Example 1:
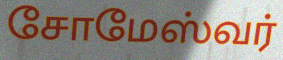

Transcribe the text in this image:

சோமேஸ்வர்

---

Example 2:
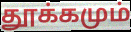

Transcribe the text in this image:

தூக்கமும்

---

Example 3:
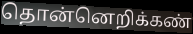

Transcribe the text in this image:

தொன்னெறிக்கண்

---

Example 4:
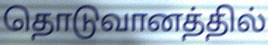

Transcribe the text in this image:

தொடுவானத்தில்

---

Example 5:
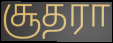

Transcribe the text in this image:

சூதரா